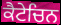
ਕੈਟੇਚਿਨ